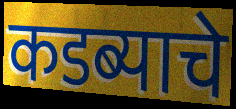
कडब्याचे